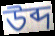
উব্দ